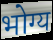
भोग्य